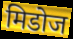
मिडोज